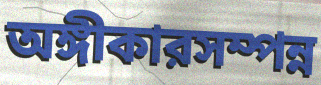
অঙ্গীকারসম্পন্ন